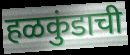
हळकुंडाची